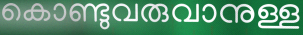
കൊണ്ടുവരുവാനുള്ള